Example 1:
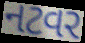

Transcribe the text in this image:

નટવર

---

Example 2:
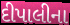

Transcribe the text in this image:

દીપાલીના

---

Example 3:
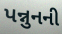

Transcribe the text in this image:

પન્નુનની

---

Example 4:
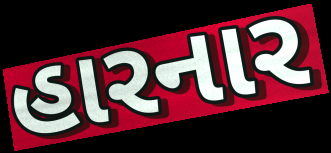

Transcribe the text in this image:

હારનાર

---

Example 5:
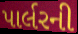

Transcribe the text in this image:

પાર્લરની